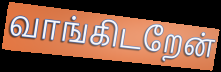
வாங்கிடறேன்